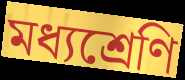
মধ্যশ্রেণি